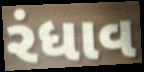
રંધાવ